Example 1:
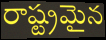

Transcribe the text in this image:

రాష్ట్రమైన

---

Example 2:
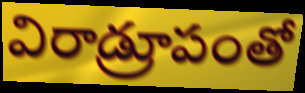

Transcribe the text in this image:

విరాడ్రూపంతో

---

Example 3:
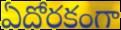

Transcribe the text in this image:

ఏదోరకంగా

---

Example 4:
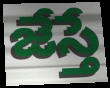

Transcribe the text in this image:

జేస్తే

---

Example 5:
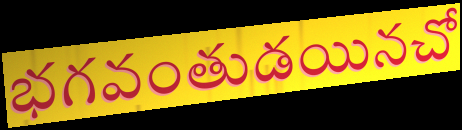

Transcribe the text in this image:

భగవంతుడయినచో